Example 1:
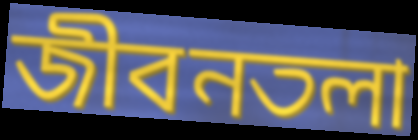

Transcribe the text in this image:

জীবনতলা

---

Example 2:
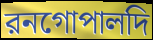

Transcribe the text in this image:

রনগোপালদি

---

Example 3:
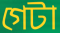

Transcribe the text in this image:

গেটা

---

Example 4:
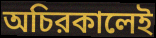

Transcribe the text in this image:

অচিরকালেই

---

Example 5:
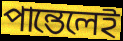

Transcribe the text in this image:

পান্তেলেই